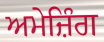
ਅਮੇਜ਼ਿੰਗ